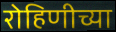
रोहिणीच्या